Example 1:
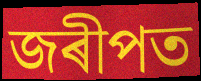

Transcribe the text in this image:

জৰীপত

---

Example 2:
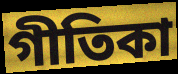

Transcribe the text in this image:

গীতিকা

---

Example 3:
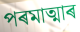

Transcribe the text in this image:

পৰমাত্মাৰ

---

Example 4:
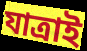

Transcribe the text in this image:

যাত্ৰাই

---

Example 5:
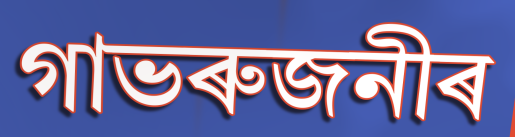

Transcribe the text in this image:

গাভৰুজনীৰ